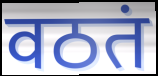
वठतं